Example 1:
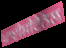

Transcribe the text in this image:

ਪਾਈਸੀਟੈਨੋਲ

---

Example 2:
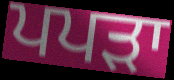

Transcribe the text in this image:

ਪਪੜਾ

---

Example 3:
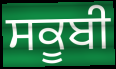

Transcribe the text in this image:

ਸਕੂਬੀ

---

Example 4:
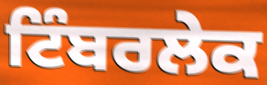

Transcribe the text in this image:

ਟਿੰਬਰਲੇਕ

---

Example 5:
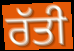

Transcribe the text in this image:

ਰੱਤੀ